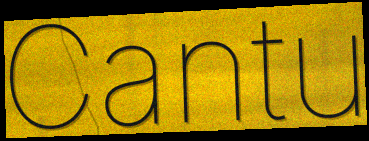
Cantu